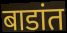
बाडांत